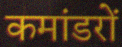
कमांडरों